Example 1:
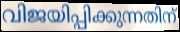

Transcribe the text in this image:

വിജയിപ്പിക്കുന്നതിന്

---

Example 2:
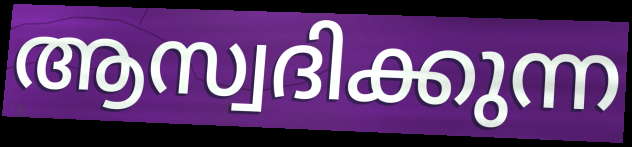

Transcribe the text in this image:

ആസ്വദിക്കുന്ന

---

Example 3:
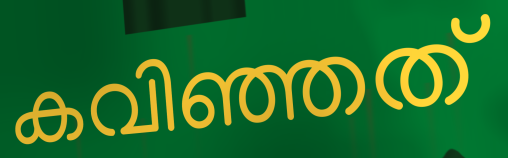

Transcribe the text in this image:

കവിഞ്ഞത്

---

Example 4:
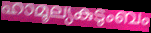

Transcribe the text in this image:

ഹാമൂല്യകുടുംബം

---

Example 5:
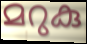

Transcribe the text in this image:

മറുകു